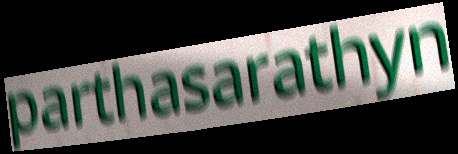
parthasarathyn